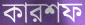
কারশফ